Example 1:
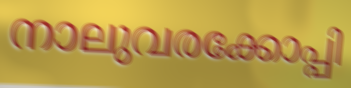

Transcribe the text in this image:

നാലുവരക്കോപ്പി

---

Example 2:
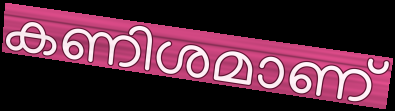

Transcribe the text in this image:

കണിശമാണ്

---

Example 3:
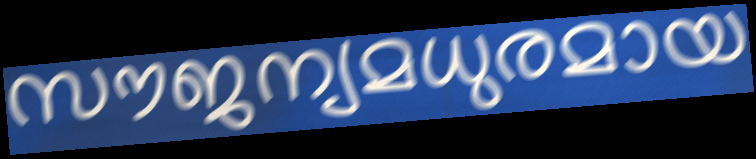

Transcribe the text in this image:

സൗജന്യമധുരമായ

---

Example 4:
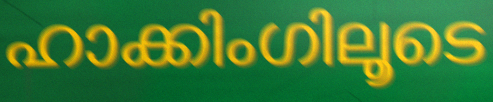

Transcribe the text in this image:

ഹാക്കിംഗിലൂടെ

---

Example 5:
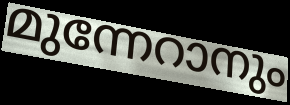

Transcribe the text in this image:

മുന്നേറാനും